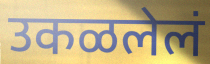
उकळलेलं